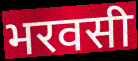
भरवसी